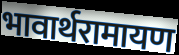
भावार्थरामायण